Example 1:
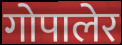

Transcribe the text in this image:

गोपालेर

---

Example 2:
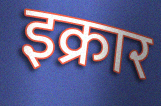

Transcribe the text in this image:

इक्रार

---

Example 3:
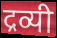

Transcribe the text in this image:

द्रव्यी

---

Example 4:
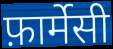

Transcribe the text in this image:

फ़ार्मेसी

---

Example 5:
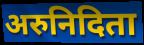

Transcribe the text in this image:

अरुनिदिता